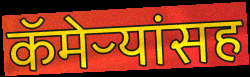
कॅमेऱ्यांसह